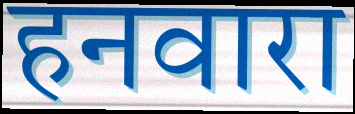
हनवारा